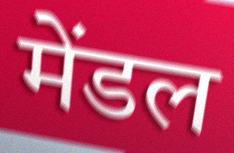
मेंडल